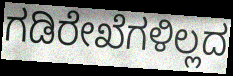
ಗಡಿರೇಖೆಗಳಿಲ್ಲದ